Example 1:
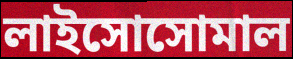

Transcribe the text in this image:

লাইসোসোমাল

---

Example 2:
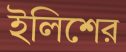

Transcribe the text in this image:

ইলিশের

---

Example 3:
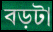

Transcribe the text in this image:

বড়টা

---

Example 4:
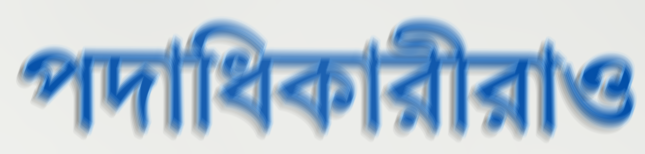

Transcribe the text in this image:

পদাধিকারীরাও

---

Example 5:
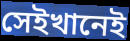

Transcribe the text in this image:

সেইখানেই